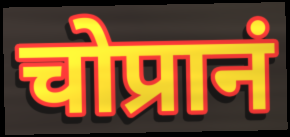
चोप्रानं